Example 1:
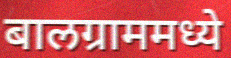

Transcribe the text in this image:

बालग्राममध्ये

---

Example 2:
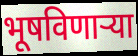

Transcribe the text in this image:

भूषविणार्‍या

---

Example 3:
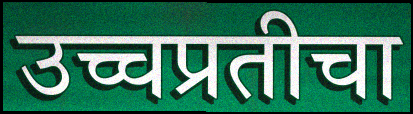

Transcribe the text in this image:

उच्चप्रतीचा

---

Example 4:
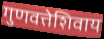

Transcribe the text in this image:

गुणवत्तेशिवाय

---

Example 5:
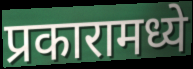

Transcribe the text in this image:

प्रकारामध्ये